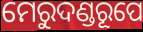
ମେରୁଦଣ୍ଡରୂପେ